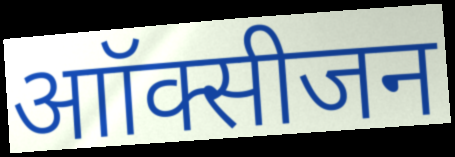
आॉक्सीजन